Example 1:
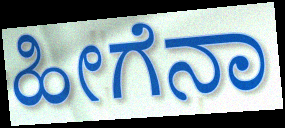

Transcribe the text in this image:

ಹೀಗೆನಾ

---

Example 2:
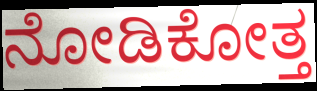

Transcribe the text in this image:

ನೋಡಿಕೋತ್ತ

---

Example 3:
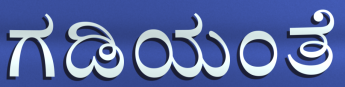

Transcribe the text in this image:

ಗಡಿಯಂತೆ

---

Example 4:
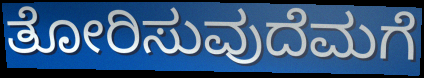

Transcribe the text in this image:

ತೋರಿಸುವುದೆಮಗೆ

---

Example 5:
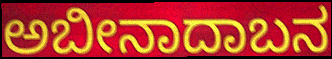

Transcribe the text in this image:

ಅಬೀನಾದಾಬನ